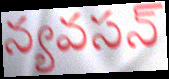
న్యవసన్